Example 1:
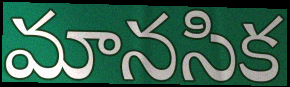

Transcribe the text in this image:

మానసిక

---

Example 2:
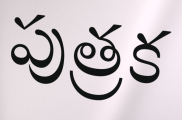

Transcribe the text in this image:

పుత్రక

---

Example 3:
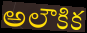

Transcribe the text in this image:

అలౌకిక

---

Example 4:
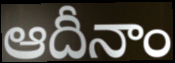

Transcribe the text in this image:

ఆదీనాం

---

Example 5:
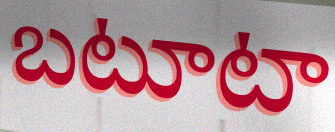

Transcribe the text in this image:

బటూటా